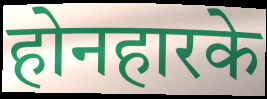
होनहारके